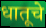
धातूचे